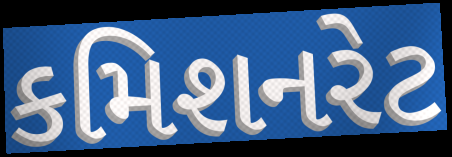
કમિશનરેટ